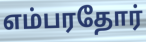
எம்பரதோர்